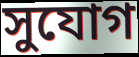
সুযোগ